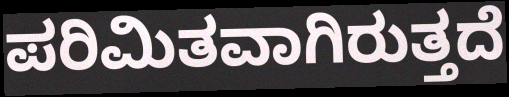
ಪರಿಮಿತವಾಗಿರುತ್ತದೆ